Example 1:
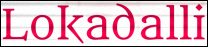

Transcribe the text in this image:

Lokadalli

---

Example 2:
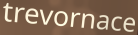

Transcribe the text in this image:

trevornace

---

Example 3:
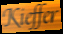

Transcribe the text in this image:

Kieffer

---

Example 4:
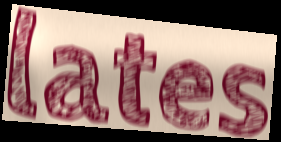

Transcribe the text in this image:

lates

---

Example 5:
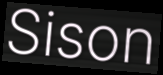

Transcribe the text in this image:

Sison